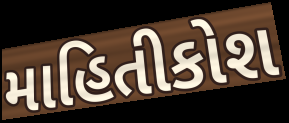
માહિતીકોશ